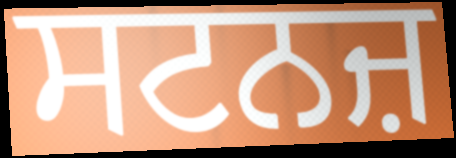
ਸਟਨਜ਼